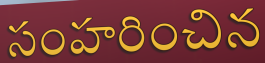
సంహరించిన